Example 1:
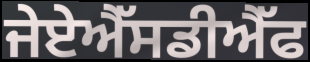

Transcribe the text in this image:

ਜੇਏਐੱਸਡੀਐੱਫ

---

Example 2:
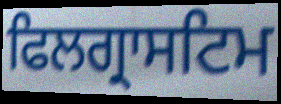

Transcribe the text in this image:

ਫਿਲਗ੍ਰਾਸਟਿਮ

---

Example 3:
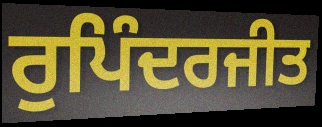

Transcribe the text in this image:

ਰੁਪਿੰਦਰਜੀਤ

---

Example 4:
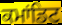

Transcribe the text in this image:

ਕਮਾਂਡਿਟ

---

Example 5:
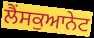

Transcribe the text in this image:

ਲੈਂਸਕੁਆਨੇਟ